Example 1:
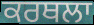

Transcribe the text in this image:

ਕਰਥਲਾ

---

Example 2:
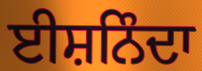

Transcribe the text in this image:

ਈਸ਼ਨਿੰਦਾ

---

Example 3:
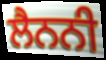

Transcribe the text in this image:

ਲੈਨਨੀ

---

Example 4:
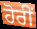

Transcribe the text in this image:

ਹੋਰੀਂ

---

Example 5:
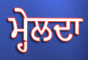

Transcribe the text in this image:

ਮ੍ਹੇਲਦਾ